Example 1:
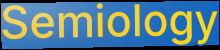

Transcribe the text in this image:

Semiology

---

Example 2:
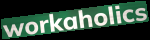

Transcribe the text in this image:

workaholics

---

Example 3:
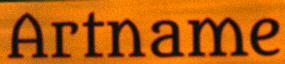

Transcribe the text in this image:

Artname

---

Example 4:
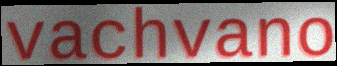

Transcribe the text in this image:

vachvano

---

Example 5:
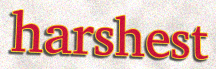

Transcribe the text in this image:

harshest